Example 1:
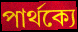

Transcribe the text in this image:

পার্থক্যে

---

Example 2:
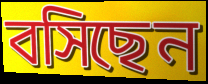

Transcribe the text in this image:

বসিছেন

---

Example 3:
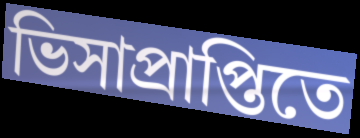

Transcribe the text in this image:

ভিসাপ্রাপ্তিতে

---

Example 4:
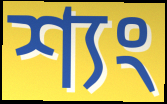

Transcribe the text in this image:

শ্যং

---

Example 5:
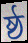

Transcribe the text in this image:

ষ্ঠ